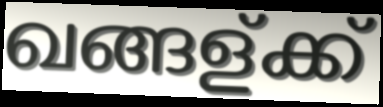
ഖങ്ങള്ക്ക്